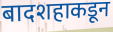
बादशहाकडून